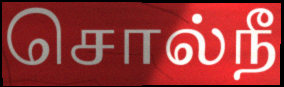
சொல்நீ